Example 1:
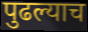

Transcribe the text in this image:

पुढल्याच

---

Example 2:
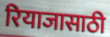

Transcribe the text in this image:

रियाजासाठी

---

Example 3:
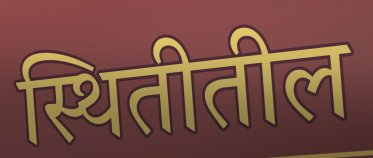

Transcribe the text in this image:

स्थितीतील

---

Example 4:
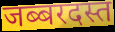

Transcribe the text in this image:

जब्बरदस्त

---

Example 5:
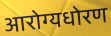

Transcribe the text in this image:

आरोग्यधोरण